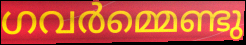
ഗവർമ്മെണ്ടു